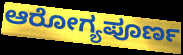
ಆರೋಗ್ಯಪೂರ್ಣ